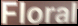
Floral